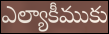
ఎల్యాకీముకు